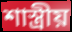
শাস্ত্ৰীয়